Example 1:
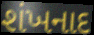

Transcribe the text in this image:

શંખનાદ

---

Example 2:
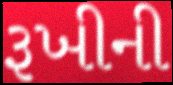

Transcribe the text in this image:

રૂખીની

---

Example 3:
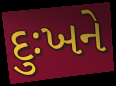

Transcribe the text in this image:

દુઃખને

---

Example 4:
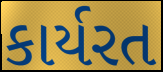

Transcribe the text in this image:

કાર્યરત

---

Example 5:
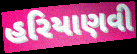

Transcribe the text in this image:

હરિયાણવી